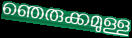
ഞെരുക്കമുള്ള